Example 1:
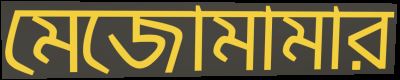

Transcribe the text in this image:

মেজোমামার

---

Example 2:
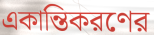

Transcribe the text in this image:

একান্তিকরণের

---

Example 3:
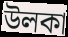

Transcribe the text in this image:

উলকা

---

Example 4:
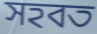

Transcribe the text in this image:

সহবত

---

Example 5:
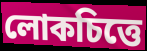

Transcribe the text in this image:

লোকচিত্তে